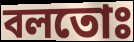
বলতোঃ